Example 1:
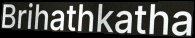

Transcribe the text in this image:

Brihathkatha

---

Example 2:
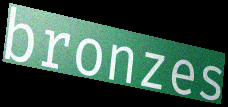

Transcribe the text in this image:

bronzes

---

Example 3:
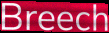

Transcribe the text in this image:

Breech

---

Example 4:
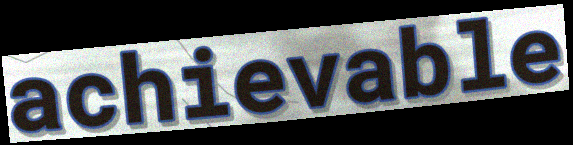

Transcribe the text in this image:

achievable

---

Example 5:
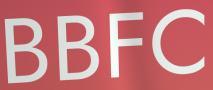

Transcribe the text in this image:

BBFC